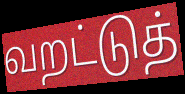
வறட்டுத்